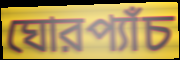
ঘোরপ্যাঁচ